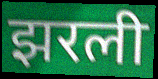
झरली